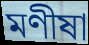
মণীষা